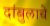
दांबुलाचे